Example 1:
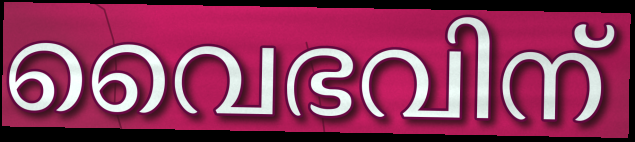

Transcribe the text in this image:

വൈഭവിന്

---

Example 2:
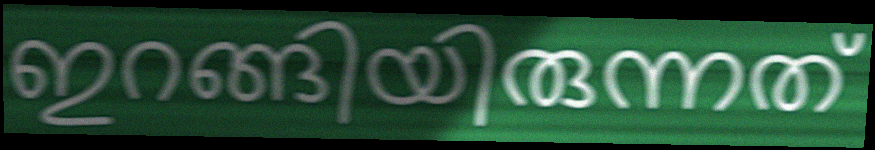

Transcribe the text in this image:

ഇറങ്ങിയിരുന്നത്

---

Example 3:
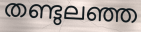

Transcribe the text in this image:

തണ്ടുലഞ്ഞ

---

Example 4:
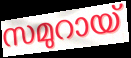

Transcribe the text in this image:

സമുറായ്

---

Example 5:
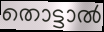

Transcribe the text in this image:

തൊട്ടാൽ